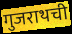
गुजराथची